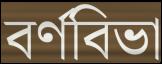
বর্ণবিভা